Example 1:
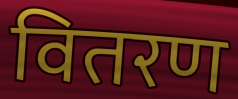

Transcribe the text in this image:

वितरण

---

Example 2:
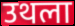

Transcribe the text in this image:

उथला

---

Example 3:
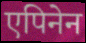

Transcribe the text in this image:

एपिनेन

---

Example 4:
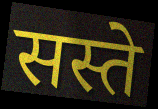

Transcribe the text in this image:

सस्ते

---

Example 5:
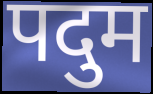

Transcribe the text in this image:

पदुम